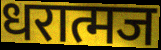
धरात्मज